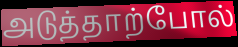
அடுத்தாற்போல்